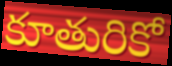
కూతురికో